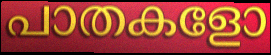
പാതകളോ